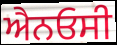
ਐਨਓਸੀ